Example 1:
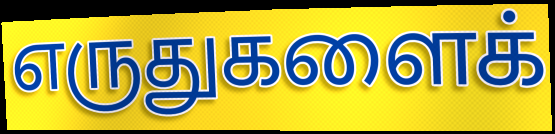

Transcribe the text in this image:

எருதுகளைக்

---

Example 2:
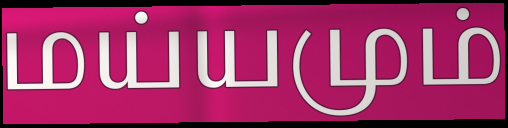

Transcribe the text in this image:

மய்யமும்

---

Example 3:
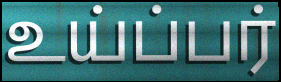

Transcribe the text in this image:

உய்ப்பர்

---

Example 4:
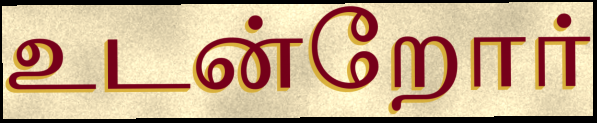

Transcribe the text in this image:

உடன்றோர்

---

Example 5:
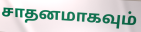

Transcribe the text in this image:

சாதனமாகவும்